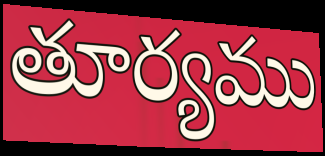
తూర్యము